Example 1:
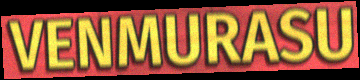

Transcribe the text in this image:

VENMURASU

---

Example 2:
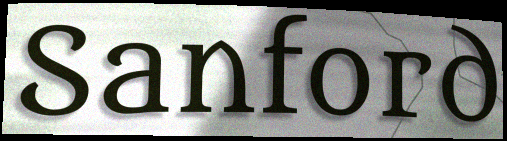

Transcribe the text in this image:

Sanford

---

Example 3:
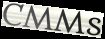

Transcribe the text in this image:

CMMs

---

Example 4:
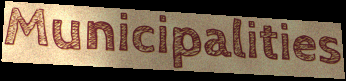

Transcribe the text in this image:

Municipalities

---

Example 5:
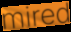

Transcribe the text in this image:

mired